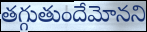
తగ్గుతుందేమోనని